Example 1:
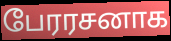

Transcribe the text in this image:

பேரரசனாக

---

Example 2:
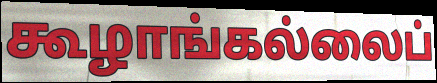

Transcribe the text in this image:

கூழாங்கல்லைப்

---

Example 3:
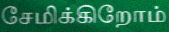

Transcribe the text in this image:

சேமிக்கிறோம்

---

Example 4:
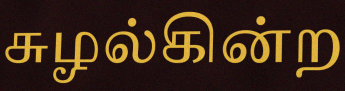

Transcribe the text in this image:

சுழல்கின்ற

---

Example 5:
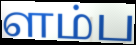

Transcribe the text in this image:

ளம்ப